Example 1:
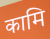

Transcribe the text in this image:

कामि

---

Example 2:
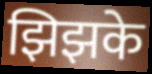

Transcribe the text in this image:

झिझके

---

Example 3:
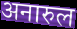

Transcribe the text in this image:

अनारुल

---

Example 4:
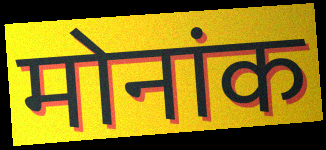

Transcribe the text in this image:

मोनांक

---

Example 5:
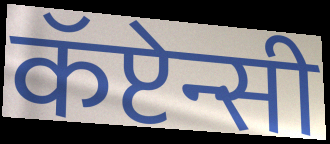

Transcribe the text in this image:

कॅप्टेन्सी